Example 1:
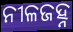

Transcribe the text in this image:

ନୀଳଜହ୍ନ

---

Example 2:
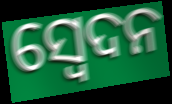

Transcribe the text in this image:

ସ୍ଵେଦନ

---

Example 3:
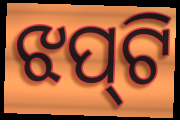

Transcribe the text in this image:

ଝପ୍‌ଟି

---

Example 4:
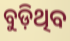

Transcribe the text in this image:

ବୁଡ଼ିଥିବ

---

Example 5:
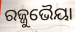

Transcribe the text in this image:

ରଜ୍ଜୁଭୈୟା